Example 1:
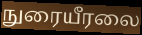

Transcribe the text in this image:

நுரையீரலை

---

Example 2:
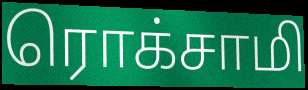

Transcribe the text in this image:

ரொக்சாமி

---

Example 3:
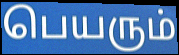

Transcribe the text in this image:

பெயரும்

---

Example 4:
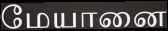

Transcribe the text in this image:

மேயானை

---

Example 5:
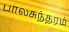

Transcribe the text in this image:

பாலசுந்தரம்